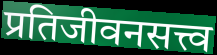
प्रतिजीवनसत्त्व